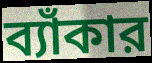
ব্যাঁকার